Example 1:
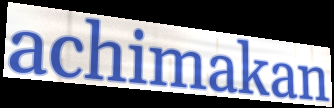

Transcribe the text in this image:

achimakan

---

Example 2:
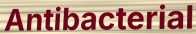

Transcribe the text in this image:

Antibacterial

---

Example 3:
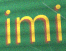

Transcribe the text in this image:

imi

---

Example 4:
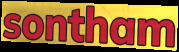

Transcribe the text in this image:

sontham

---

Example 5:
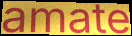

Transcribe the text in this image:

amate